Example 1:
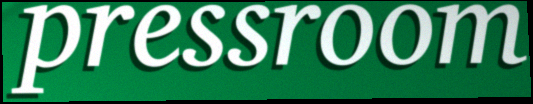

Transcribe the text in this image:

pressroom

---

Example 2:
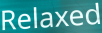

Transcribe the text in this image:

Relaxed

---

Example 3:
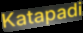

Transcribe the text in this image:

Katapadi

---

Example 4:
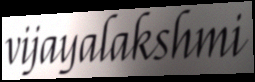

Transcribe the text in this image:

vijayalakshmi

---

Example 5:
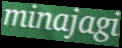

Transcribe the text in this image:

minajagi